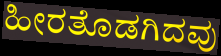
ಹೀರತೊಡಗಿದವು